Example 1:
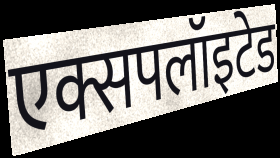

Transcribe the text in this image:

एक्सपलॉइटेड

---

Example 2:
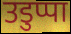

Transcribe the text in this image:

उडुप्पा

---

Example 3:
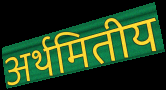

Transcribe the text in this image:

अर्थमितीय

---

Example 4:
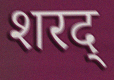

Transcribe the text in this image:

शरद्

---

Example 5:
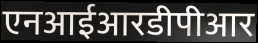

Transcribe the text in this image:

एनआईआरडीपीआर